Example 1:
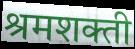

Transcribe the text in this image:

श्रमशक्ती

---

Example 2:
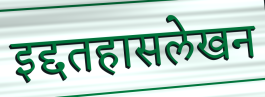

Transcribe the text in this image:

इद्दतहासलेखन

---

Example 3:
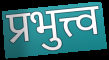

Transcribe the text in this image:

प्रभुत्त्व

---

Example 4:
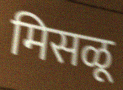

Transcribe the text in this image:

मिसळू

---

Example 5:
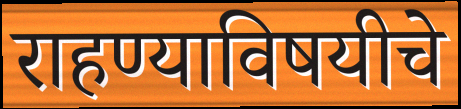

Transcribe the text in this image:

राहण्याविषयीचे